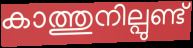
കാത്തുനില്പുണ്ട്